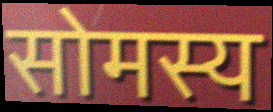
सोमस्य